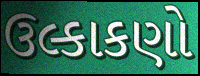
ઉલ્કાકણો